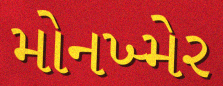
મોનખ્મેર